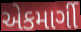
એકમાર્ગી